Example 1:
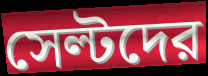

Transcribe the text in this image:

সেল্টদের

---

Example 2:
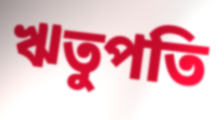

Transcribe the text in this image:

ঋতুপতি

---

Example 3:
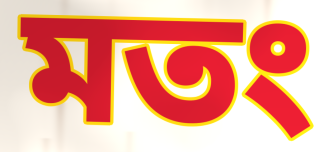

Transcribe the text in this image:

মতং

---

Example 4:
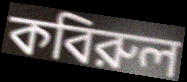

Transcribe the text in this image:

কবিরুল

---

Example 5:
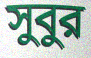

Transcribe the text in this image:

সুবুর